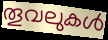
തൂവലുകൾ